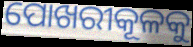
ପୋଖରୀକୂଳକୁ